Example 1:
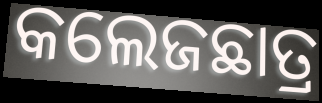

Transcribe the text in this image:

କଲେଜଛାତ୍ର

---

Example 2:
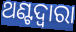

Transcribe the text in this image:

ଥଣ୍ଟଦ୍ୱାରା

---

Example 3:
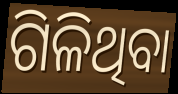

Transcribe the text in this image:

ଗିଳିଥିବା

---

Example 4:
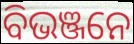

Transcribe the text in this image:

ବିଭଞ୍ଜନେ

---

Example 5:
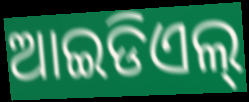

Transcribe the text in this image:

ଆଇଡିଏଲ୍